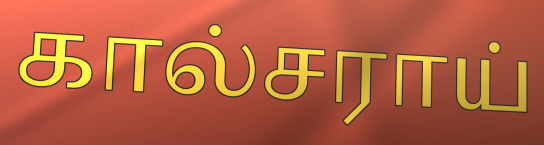
கால்சராய்